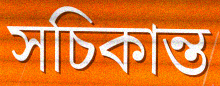
সচিকান্ত